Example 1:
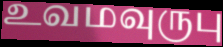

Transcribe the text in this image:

உவமவுருபு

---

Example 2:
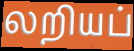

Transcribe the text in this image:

லறியப்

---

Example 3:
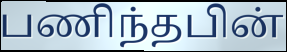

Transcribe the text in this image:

பணிந்தபின்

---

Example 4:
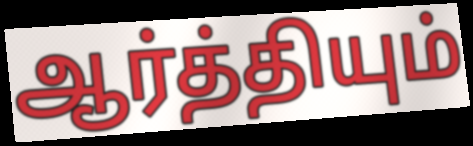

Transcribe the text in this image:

ஆர்த்தியும்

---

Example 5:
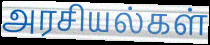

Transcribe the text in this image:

அரசியல்கள்